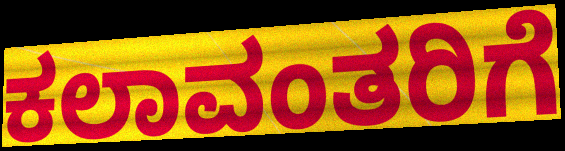
ಕಲಾವಂತರಿಗೆ